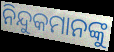
ନିନ୍ଦୁକମାନଙ୍କୁ